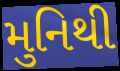
મુનિથી